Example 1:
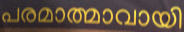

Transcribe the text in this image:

പരമാത്മാവായി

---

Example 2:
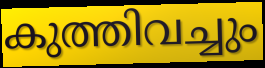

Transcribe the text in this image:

കുത്തിവച്ചും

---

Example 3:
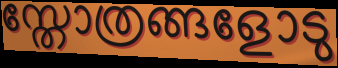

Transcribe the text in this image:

സ്തോത്രങ്ങളോടു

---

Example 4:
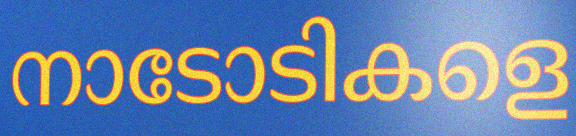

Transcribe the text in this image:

നാടോടികളെ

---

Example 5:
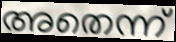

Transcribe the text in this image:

അതെന്ന്